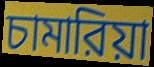
চামারিয়া